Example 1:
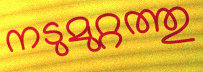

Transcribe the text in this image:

നടുമുറ്റത്തു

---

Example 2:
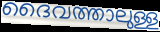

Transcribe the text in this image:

ദൈവത്താലുള്ള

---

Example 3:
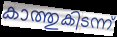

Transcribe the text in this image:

കാത്തുകിടന്ന്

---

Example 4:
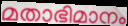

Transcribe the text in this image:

മതാഭിമാനം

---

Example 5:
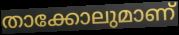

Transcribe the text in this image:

താക്കോലുമാണ്